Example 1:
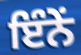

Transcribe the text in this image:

ਇੰਨੇਂ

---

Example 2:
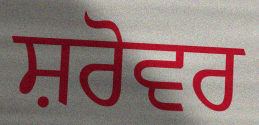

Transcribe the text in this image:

ਸ਼ਰੋਵਰ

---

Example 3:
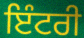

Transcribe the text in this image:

ਇੰਟਰੀ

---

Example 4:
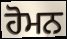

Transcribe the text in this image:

ਹੋਮਨ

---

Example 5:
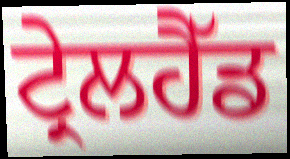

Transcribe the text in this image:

ਟ੍ਰੇਲਹੈੱਡ